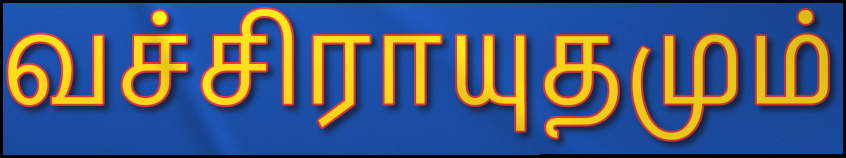
வச்சிராயுதமும்